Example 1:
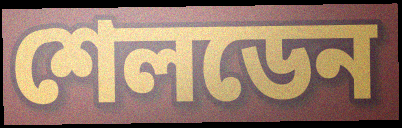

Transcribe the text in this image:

শেলডেন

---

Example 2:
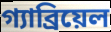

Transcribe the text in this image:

গ্যাব্রিয়েল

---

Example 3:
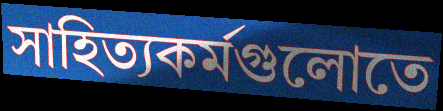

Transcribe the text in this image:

সাহিত্যকর্মগুলোতে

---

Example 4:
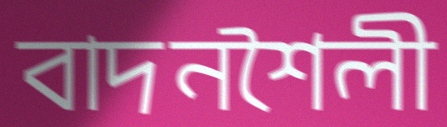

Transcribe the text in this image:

বাদনশৈলী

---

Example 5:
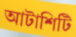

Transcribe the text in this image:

আটাশিটি